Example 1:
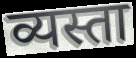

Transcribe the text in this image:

व्यस्ता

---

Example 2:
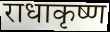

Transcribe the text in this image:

राधाकृष्ण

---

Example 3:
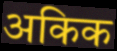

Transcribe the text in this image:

अकिक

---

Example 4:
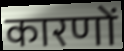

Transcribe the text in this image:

कारणों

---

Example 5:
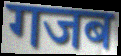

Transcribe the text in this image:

गजब